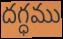
దగ్ధము